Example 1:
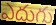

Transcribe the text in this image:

ఎదుగు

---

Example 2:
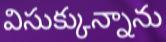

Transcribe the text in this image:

విసుక్కున్నాను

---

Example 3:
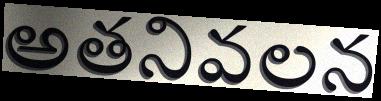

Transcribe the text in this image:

అతనివలన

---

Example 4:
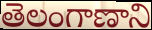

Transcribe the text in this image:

తెలంగాణాని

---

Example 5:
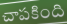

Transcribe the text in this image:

చాపకింది